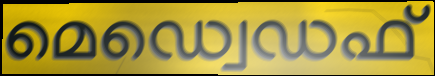
മെഡ്വെഡഫ്